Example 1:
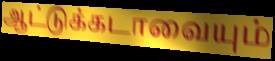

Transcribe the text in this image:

ஆட்டுக்கடாவையும்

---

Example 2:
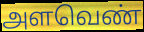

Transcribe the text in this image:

அளவெண்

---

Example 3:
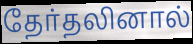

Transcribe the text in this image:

தேர்தலினால்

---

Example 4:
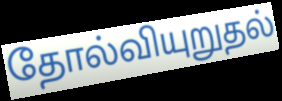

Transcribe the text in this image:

தோல்வியுறுதல்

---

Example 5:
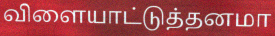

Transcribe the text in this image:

விளையாட்டுத்தனமா